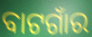
ବାଟଗାଁର